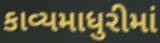
કાવ્યમાધુરીમાં